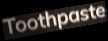
Toothpaste